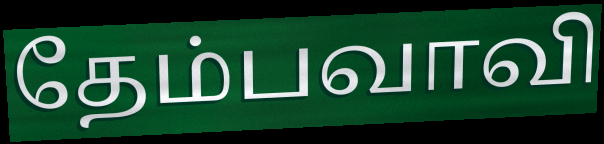
தேம்பவாவி